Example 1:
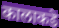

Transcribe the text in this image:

कालाकडे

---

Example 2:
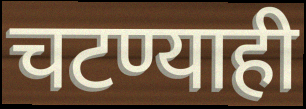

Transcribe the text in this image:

चटण्याही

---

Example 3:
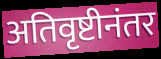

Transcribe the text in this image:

अतिवृष्टीनंतर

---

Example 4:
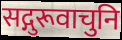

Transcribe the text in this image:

सद्गुरूवाचुनि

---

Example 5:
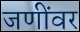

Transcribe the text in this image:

जणींवर